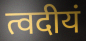
त्वदीयं